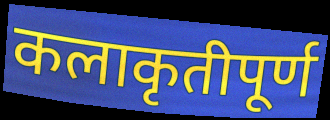
कलाकृतीपूर्ण